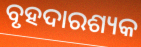
ବୃହଦାରଶ୍ୟକ